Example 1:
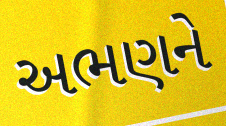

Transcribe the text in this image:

અભણને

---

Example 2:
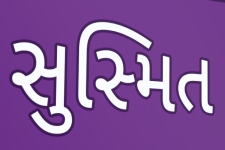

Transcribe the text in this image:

સુસ્મિત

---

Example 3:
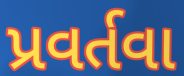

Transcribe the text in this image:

પ્રવર્તવા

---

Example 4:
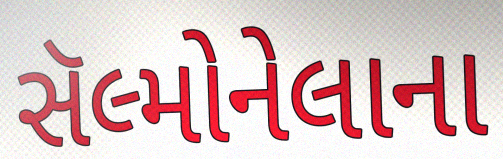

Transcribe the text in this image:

સૅલ્મોનેલાના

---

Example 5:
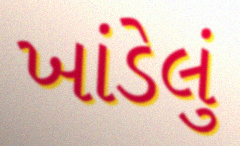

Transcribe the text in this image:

ખાંડેલું